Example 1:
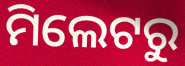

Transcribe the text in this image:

ମିଲେଟରୁ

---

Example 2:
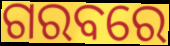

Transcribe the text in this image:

ଗରବରେ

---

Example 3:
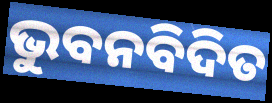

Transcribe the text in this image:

ଭୁବନବିଦିତ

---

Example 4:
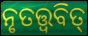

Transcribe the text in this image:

ନୃତତ୍ତ୍ୱବିତ୍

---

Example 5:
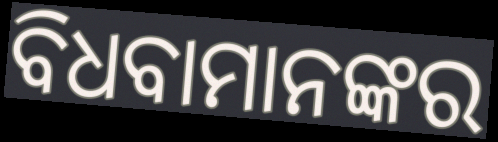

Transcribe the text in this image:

ବିଧବାମାନଙ୍କର